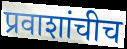
प्रवाशांचीच